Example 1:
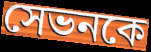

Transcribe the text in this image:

সেভনকে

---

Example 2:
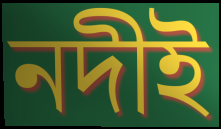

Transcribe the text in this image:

নদীই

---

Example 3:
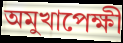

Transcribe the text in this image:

অমুখাপেক্ষী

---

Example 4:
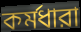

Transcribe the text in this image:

কর্মধারা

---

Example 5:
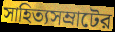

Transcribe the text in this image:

সাহিত্যসম্রাটের